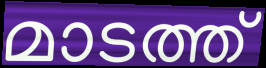
മാടത്ത്